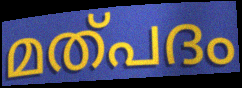
മത്പദം